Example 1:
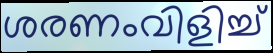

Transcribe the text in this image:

ശരണംവിളിച്ച്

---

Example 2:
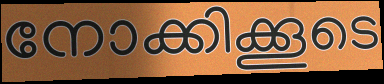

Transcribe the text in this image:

നോക്കിക്കൂടെ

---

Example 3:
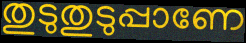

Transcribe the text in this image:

തുടുതുടുപ്പാണേ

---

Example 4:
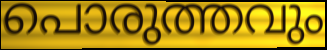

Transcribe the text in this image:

പൊരുത്തവും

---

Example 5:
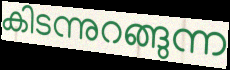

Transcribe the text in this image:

കിടന്നുറങ്ങുന്ന